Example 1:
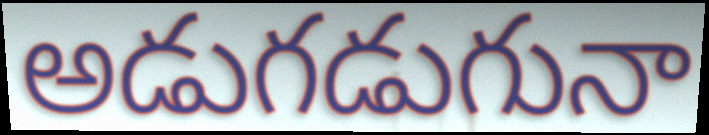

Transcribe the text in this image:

అడుగడుగునా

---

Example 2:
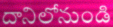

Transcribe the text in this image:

దానిలోనుండి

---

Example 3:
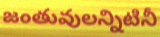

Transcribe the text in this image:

జంతువులన్నిటినీ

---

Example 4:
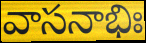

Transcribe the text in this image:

వాసనాభిః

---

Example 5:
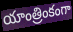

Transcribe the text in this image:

యాంత్రింకంగా